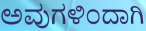
ಅವುಗಳಿಂದಾಗಿ